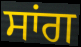
ਸਾਂਗ